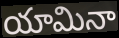
యామినా